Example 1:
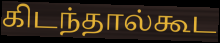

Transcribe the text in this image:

கிடந்தால்கூட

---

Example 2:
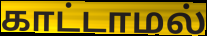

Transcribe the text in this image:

காட்டாமல்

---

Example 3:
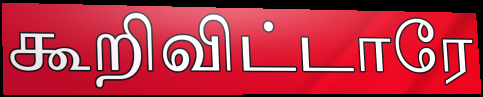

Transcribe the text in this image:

கூறிவிட்டாரே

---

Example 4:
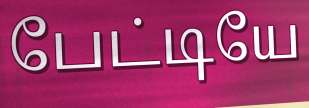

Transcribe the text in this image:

பேட்டியே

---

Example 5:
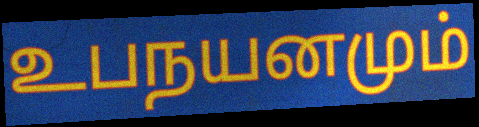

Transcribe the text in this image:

உபநயனமும்